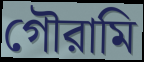
গৌরামি